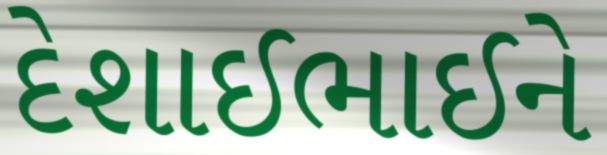
દેશાઈભાઈને